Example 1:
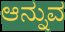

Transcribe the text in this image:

ಆನ್ನುವ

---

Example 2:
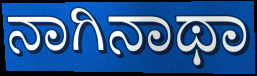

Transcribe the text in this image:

ನಾಗಿನಾಥಾ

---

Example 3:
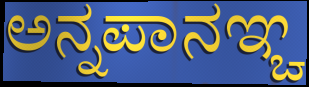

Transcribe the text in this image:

ಅನ್ನಪಾನಞ್ಚ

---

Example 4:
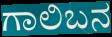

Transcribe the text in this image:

ಗಾಲಿಬನ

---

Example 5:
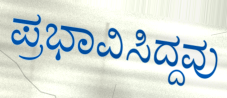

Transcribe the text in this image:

ಪ್ರಭಾವಿಸಿದ್ದವು